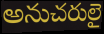
అనుచరులై